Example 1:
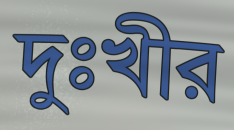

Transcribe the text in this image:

দুঃখীর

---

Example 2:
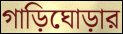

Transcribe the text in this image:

গাড়িঘোড়ার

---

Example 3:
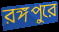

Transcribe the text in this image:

রঙ্গপুরে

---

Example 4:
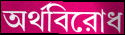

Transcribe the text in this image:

অর্থবিরোধ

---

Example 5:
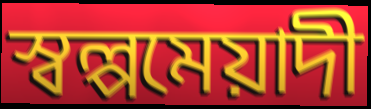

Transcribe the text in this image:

স্বল্পমেয়াদী